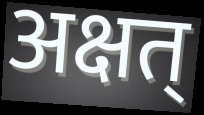
अक्षत्